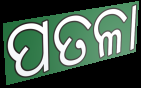
ପତଳା